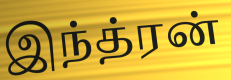
இந்த்ரன்